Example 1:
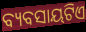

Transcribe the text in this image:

ବ୍ୟବସାୟଟିଏ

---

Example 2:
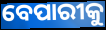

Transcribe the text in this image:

ବେପାରୀକୁ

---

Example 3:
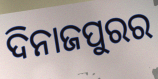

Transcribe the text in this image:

ଦିନାଜପୁରର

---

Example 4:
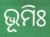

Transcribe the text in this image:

ଭୂମିଃ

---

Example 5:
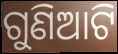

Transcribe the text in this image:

ଗୁଣିଆଟି